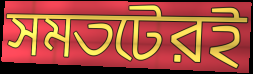
সমতটেরই